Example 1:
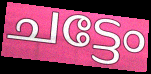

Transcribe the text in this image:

ചട്ടേം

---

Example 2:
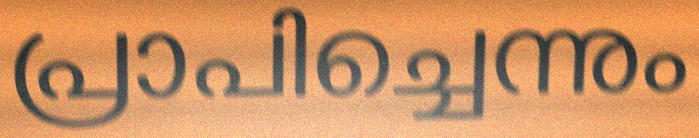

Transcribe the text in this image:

പ്രാപിച്ചെന്നും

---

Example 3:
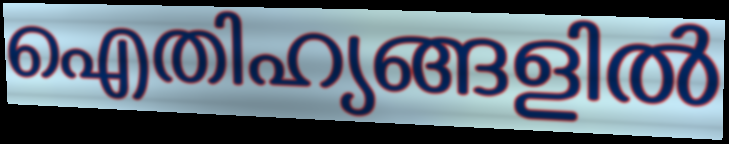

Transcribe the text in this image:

ഐതിഹ്യങ്ങളിൽ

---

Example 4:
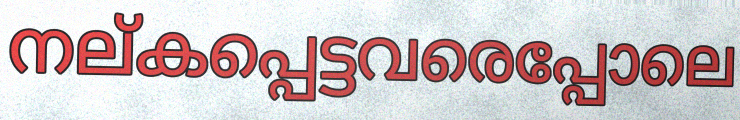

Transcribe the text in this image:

നല്കപ്പെട്ടവരെപ്പോലെ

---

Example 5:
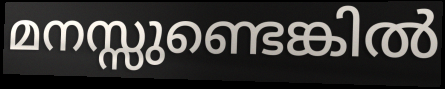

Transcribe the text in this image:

മനസ്സുണ്ടെങ്കിൽ